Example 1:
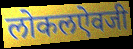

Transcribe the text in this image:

लोकलऐवजी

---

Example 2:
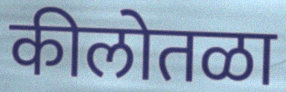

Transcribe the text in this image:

कीलोतळा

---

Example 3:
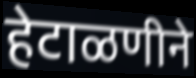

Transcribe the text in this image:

हेटाळणीने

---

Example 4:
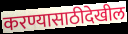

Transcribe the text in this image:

करण्यासाठीदेखील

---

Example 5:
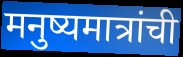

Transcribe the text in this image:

मनुष्यमात्रांची